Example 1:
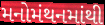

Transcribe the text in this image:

મનોમંથનમાંથી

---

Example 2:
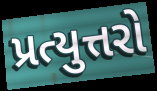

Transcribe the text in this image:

પ્રત્યુત્તરો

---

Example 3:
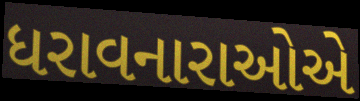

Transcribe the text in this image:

ધરાવનારાઓએ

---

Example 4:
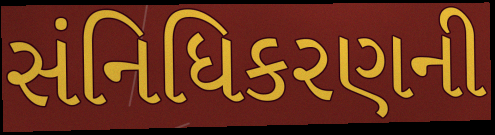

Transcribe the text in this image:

સંનિધિકરણની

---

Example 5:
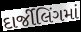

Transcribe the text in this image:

દાર્જીલિંગમાં